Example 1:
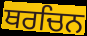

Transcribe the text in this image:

ਥਰਚਿਨ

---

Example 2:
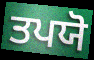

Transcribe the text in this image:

ਤਪਯੋ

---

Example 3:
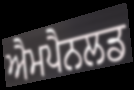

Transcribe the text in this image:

ਐਮਪੈਨਲਡ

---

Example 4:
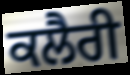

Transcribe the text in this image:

ਕਲੈਰੀ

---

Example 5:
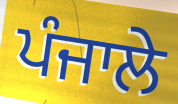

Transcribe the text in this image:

ਪੰਜਾਲੇ